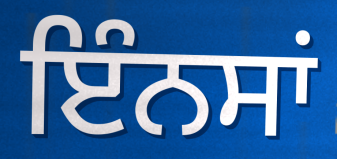
ਇੰਨਸਾਂ